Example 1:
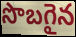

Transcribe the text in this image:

సొబగైన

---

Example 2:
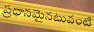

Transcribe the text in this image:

ప్రధానమైనటువంటి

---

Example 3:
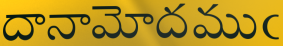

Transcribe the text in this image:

దానామోదముఁ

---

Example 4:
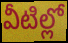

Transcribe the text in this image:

వీటిల్లో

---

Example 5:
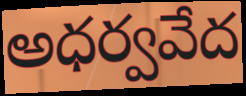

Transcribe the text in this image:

అధర్వవేద